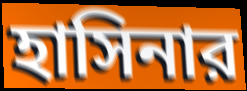
হাসিনার